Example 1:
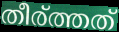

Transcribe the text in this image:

തീര്ത്തത്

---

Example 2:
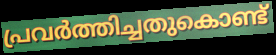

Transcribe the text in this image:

പ്രവർത്തിച്ചതുകൊണ്ട്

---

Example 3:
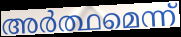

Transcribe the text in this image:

അർത്ഥമെന്ന്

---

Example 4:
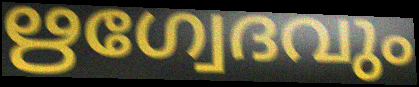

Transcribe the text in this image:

ഋഗ്വേദവും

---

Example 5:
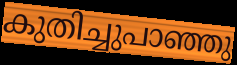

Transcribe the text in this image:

കുതിച്ചുപാഞ്ഞു